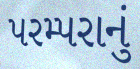
પરમ્પરાનું